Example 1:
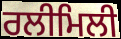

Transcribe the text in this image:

ਰਲੀਮਿਲੀ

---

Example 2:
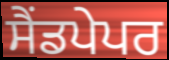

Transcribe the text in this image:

ਸੈਂਡਪੇਪਰ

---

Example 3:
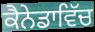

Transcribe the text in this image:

ਕੈਨੇਡਾਵਿੱਚ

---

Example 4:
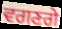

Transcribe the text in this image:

ਵਗਣਗੇ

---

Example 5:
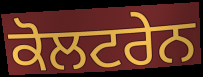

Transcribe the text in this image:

ਕੋਲਟਰੇਨ